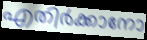
എതിർക്കാനോ